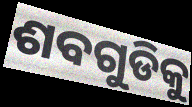
ଶବଗୁଡିକୁ